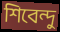
শিবেন্দু